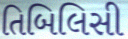
તિબિલિસી